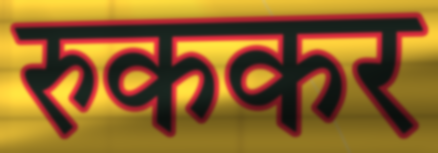
रुककर